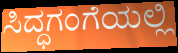
ಸಿದ್ಧಗಂಗೆಯಲ್ಲಿ